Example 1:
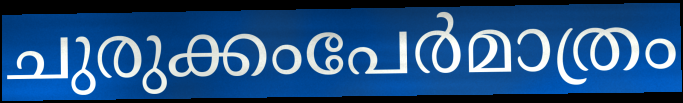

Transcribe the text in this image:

ചുരുക്കംപേർമാത്രം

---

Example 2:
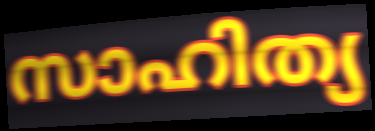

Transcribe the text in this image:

സാഹിത്യ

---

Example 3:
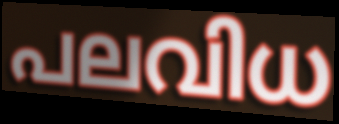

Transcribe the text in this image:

പലവിധ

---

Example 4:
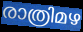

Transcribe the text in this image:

രാത്രിമഴ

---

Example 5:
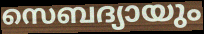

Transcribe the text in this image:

സെബദ്യായും